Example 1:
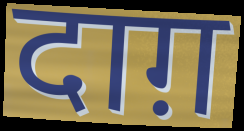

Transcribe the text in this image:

दाग़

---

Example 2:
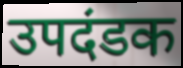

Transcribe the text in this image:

उपदंडक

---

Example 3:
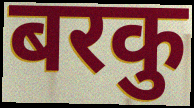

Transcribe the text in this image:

बरकु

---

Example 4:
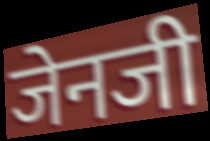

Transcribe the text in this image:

जेनजी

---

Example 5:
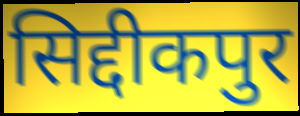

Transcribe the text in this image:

सिद्दीकपुर